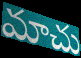
మాచు